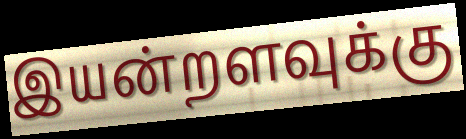
இயன்றளவுக்கு